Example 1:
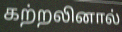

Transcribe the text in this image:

கற்றலினால்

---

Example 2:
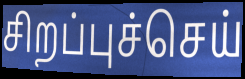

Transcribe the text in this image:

சிறப்புச்செய்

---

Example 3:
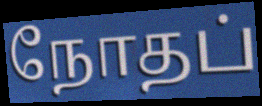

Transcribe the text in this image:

நோதப்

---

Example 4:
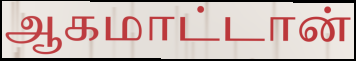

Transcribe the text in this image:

ஆகமாட்டான்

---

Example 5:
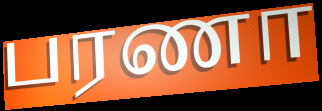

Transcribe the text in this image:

பரணா